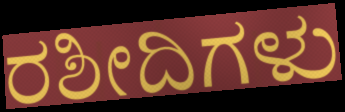
ರಶೀದಿಗಳು